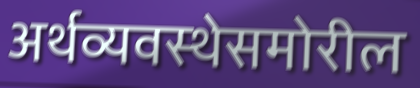
अर्थव्यवस्थेसमोरील